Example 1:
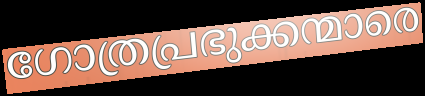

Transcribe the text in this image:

ഗോത്രപ്രഭുക്കന്മാരെ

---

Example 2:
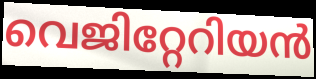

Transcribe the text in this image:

വെജിറ്റേറിയൻ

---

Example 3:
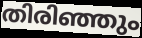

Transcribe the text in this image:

തിരിഞ്ഞും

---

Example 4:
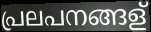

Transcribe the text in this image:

പ്രലപനങ്ങള്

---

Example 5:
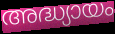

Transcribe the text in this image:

അദ്ധ്യായം